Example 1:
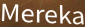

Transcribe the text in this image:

Mereka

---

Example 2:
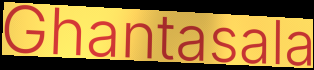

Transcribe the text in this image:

Ghantasala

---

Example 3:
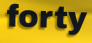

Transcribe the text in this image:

forty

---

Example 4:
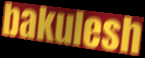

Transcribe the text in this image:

bakulesh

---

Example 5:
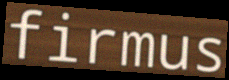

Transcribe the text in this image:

firmus